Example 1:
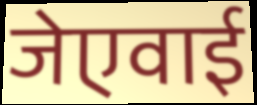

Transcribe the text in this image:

जेएवाई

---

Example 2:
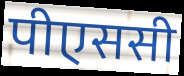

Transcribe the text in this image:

पीएससी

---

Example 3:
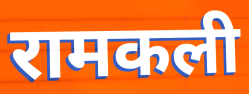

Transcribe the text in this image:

रामकली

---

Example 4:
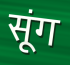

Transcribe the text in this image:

सूंग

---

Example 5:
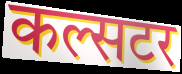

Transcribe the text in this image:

कल्सटर